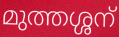
മുത്തശ്ശന്